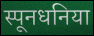
स्पूनधनिया